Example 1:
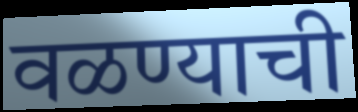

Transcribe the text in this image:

वळण्याची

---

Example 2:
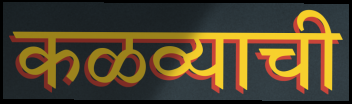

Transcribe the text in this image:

कळव्याची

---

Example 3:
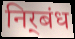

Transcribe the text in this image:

निर्बंध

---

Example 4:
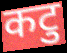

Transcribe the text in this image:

कटु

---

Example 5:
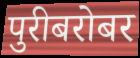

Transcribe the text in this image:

पुरीबरोबर